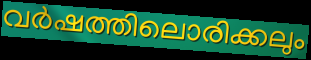
വർഷത്തിലൊരിക്കലും